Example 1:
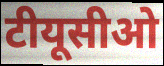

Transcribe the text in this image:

टीयूसीओ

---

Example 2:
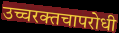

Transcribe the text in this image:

उच्चरक्तचापरोधी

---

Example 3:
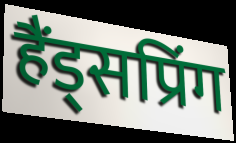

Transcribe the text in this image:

हैंड्सप्रिंग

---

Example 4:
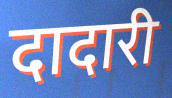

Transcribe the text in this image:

दादारी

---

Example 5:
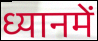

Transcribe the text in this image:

ध्यानमें